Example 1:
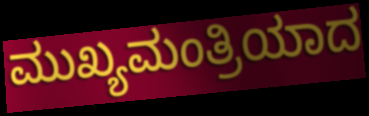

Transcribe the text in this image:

ಮುಖ್ಯಮಂತ್ರಿಯಾದ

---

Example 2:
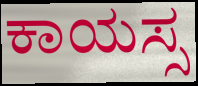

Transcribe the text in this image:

ಕಾಯಸ್ಸ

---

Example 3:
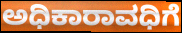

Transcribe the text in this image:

ಅಧಿಕಾರಾವಧಿಗೆ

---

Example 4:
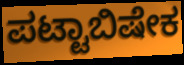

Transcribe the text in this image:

ಪಟ್ಟಾಬಿಷೇಕ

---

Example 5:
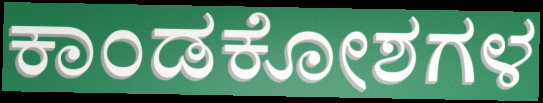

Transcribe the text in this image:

ಕಾಂಡಕೋಶಗಳ